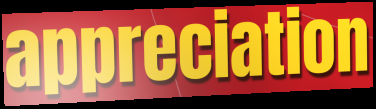
appreciation